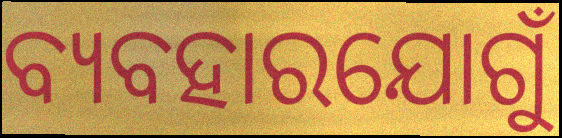
ବ୍ୟବହାରଯୋଗୁଁ